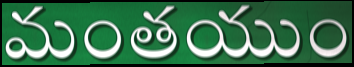
మంతయుం